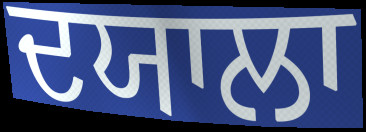
ਦਯਾਲਾ